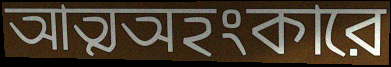
আত্মঅহংকারে